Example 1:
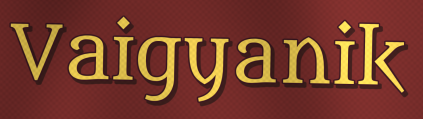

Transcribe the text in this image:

Vaigyanik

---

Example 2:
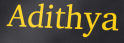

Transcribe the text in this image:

Adithya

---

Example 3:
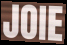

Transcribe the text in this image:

JOIE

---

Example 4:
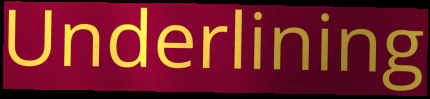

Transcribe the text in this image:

Underlining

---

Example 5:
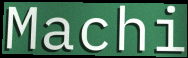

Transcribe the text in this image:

Machi